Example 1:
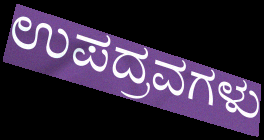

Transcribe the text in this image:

ಉಪದ್ರವಗಳು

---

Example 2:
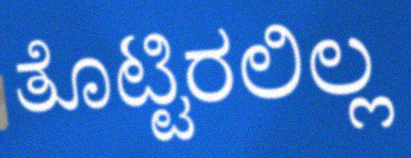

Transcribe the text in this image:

ತೊಟ್ಟಿರಲಿಲ್ಲ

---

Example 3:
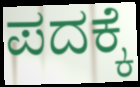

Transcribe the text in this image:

ಪದಕ್ಕೆ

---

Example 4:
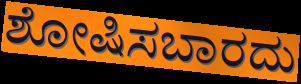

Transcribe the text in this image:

ಶೋಷಿಸಬಾರದು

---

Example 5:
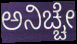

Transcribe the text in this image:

ಅನಿಚ್ಚೇ